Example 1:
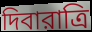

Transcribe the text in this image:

দিবারাত্রি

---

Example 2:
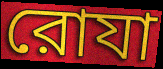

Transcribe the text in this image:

রোযা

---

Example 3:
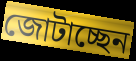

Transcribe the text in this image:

জোটাচ্ছেন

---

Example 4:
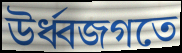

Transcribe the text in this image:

উর্ধ্বজগতে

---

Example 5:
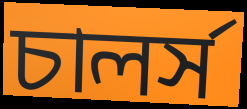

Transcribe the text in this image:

চালর্স